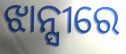
ଝାନ୍ସୀରେ